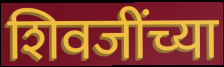
शिवजींच्या